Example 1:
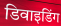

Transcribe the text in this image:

डिवाइडिंग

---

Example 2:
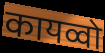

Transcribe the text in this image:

कायव्वो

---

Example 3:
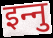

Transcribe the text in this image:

इन्नु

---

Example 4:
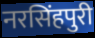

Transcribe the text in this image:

नरसिंहपुरी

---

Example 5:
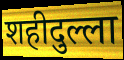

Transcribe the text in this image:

शहीदुल्ला